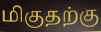
மிகுதற்கு